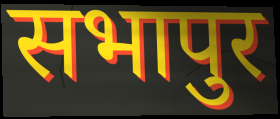
सभापुर